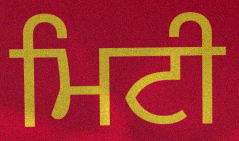
ਮਿਟੀ